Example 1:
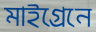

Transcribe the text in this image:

মাইগ্রেনে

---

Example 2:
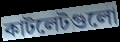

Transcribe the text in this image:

কাটলেটগুলো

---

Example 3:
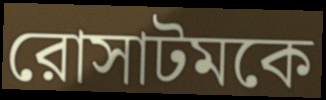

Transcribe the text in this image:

রোসাটমকে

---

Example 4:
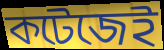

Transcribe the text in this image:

কটেজেই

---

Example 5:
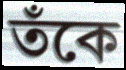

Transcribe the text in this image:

তঁকে